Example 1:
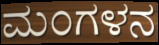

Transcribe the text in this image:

ಮಂಗಳನ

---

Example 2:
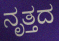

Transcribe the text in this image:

ನೃತ್ತದ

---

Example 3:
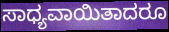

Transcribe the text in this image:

ಸಾಧ್ಯವಾಯಿತಾದರೂ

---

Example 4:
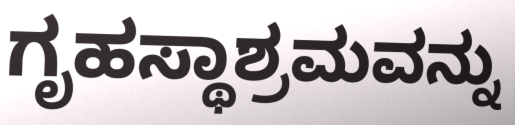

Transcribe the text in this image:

ಗೃಹಸ್ಥಾಶ್ರಮವನ್ನು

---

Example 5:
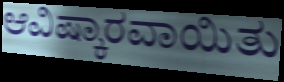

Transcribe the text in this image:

ಆವಿಷ್ಕಾರವಾಯಿತು